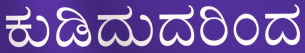
ಕುಡಿದುದರಿಂದ